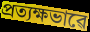
প্ৰত্যক্ষভাৱে